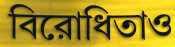
বিরোধিতাও